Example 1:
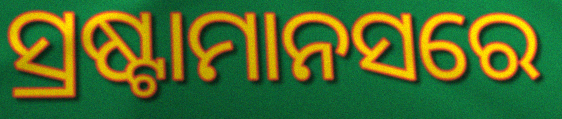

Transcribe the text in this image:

ସ୍ରଷ୍ଟାମାନସରେ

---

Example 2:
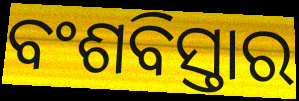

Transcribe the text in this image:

ବଂଶବିସ୍ତାର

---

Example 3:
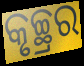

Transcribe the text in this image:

କୃଚ୍ଛ୍ରର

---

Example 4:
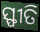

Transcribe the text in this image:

ସ୍ଫୀତି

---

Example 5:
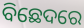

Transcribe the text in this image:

ବିଛେଦରେ